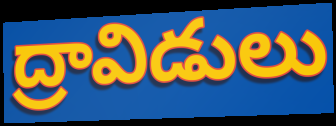
ద్రావిడులు